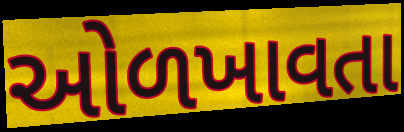
ઓળખાવતા